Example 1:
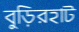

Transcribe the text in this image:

বুড়িরহাট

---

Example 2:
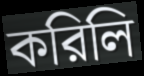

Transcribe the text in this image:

করিলি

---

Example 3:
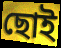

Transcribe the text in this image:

ছোই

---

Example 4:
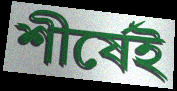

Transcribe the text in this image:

শীর্ষেই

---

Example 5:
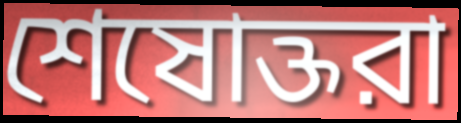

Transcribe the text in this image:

শেষোক্তরা